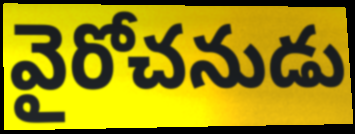
వైరోచనుడు